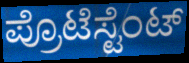
ಪ್ರೊಟೆಸ್ಟೆಂಟ್